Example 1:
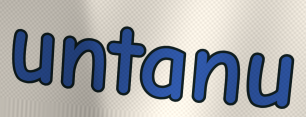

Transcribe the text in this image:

untanu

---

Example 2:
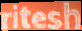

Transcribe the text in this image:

ritesh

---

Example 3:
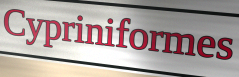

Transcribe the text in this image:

Cypriniformes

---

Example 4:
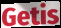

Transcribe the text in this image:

Getis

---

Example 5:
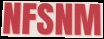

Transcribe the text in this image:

NFSNM